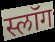
स्लॉग